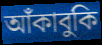
আঁকাবুকি